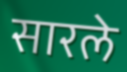
सारले